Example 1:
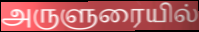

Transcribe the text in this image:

அருளுரையில்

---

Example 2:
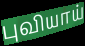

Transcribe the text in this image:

புவியாய்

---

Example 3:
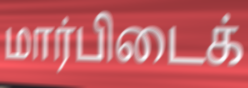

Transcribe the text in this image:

மார்பிடைக்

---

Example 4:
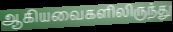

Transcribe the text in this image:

ஆகியவைகளிலிருந்து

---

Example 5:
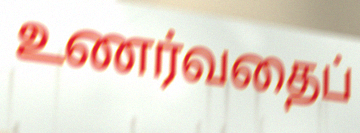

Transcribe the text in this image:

உணர்வதைப்